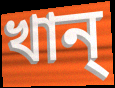
খান্